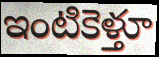
ఇంటికెళ్తూ